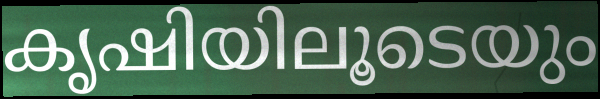
കൃഷിയിലൂടെയും